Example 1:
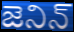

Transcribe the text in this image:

జెనిన్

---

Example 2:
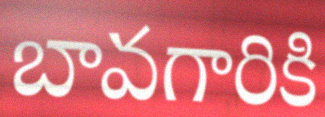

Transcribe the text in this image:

బావగారికి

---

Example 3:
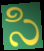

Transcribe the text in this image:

సి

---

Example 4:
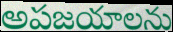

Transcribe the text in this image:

అపజయాలను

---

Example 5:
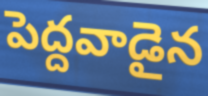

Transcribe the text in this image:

పెద్దవాడైన